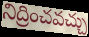
నిద్రించవచ్చు